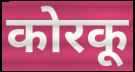
कोरकू